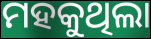
ମହକୁଥିଲା